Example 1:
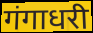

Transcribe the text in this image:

गंगाधरी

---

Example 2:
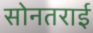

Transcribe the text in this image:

सोनतराई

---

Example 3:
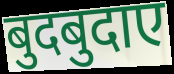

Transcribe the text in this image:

बुदबुदाए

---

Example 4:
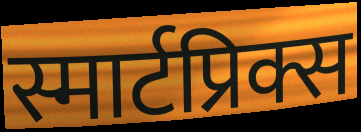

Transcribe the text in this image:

स्मार्टप्रिक्स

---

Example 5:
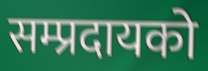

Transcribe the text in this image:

सम्प्रदायको